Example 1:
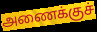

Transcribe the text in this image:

அணைக்குச்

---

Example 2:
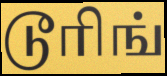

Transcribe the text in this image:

டூரிங்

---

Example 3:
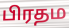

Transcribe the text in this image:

பிரதம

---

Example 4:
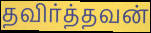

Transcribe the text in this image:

தவிர்த்தவன்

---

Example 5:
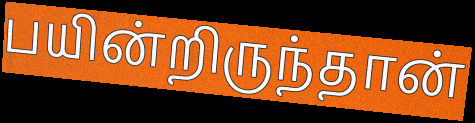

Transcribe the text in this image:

பயின்றிருந்தான்